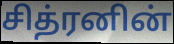
சித்ரனின்